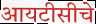
आयटीसीचे